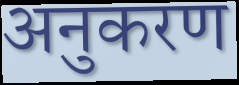
अनुकरण